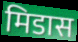
मिडास